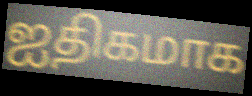
ஐதிகமாக